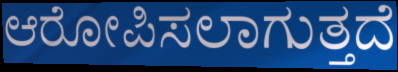
ಆರೋಪಿಸಲಾಗುತ್ತದೆ